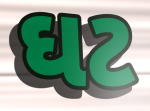
ઘટ